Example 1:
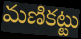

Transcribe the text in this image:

మణికట్టు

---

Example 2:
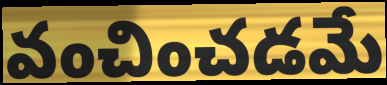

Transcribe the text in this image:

వంచించడమే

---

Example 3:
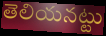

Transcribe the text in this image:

తెలియనట్టు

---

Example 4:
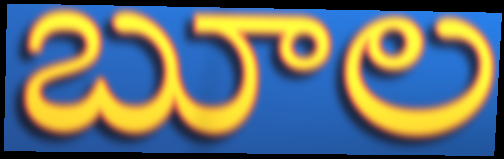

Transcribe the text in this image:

బూల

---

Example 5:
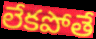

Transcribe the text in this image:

లేకపోతే